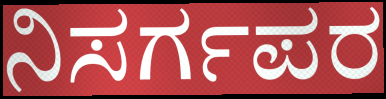
ನಿಸರ್ಗಪರ